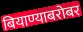
बियाण्याबरोबर